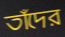
তাঁদের